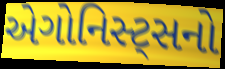
એગોનિસ્ટ્સનો